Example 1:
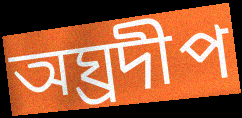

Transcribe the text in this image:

অঘ্ৰদীপ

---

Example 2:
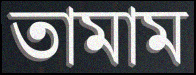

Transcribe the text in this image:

তামাম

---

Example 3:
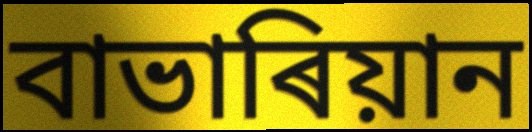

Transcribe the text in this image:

বাভাৰিয়ান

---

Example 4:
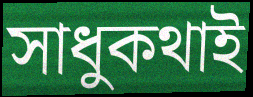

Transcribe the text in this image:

সাধুকথাই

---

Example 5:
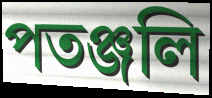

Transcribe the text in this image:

পতঞ্জলি